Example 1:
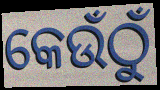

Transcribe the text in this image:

କେଉଁଠୁଁ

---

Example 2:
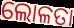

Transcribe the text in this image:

ଲୋଳତା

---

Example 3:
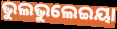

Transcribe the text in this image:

ଭୁଲଭୁଲେଇୟା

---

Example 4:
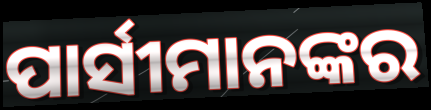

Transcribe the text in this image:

ପାର୍ସୀମାନଙ୍କର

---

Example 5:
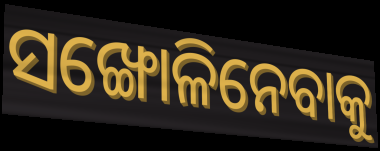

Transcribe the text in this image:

ସଙ୍ଖୋଳିନେବାକୁ